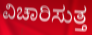
ವಿಚಾರಿಸುತ್ತ